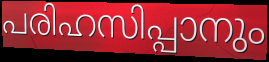
പരിഹസിപ്പാനും